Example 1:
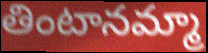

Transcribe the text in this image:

తింటానమ్మా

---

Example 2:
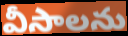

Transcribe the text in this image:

వీసాలను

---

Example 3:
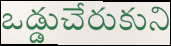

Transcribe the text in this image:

ఒడ్డుచేరుకుని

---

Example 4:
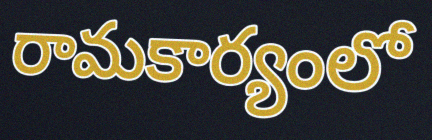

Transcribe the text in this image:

రామకార్యంలో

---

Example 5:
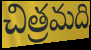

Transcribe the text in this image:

చిత్రమది